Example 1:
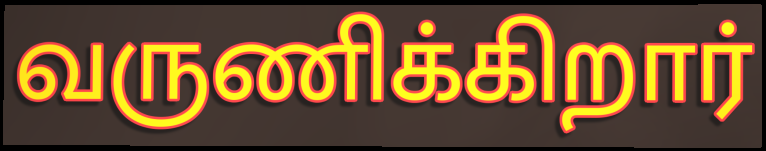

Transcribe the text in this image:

வருணிக்கிறார்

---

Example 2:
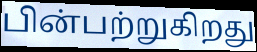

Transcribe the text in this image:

பின்பற்றுகிறது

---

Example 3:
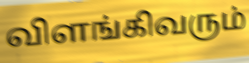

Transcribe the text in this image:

விளங்கிவரும்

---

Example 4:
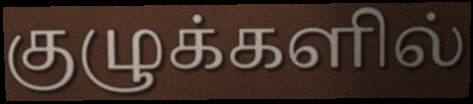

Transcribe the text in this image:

குழுக்களில்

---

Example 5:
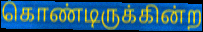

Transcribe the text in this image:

கொண்டிருக்கின்ற